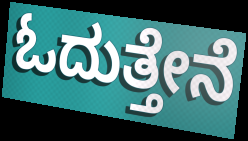
ಓದುತ್ತೇನೆ